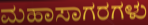
ಮಹಾಸಾಗರಗಳು